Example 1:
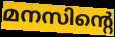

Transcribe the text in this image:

മനസിന്റെ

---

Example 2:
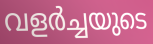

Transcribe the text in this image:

വളർച്ചയുടെ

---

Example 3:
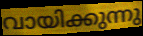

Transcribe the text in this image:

വായിക്കുന്നു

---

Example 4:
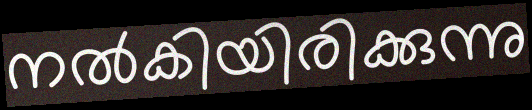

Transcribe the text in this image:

നൽകിയിരിക്കുന്നു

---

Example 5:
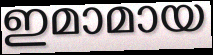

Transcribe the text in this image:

ഇമാമായ